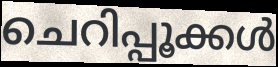
ചെറിപ്പൂക്കൾ